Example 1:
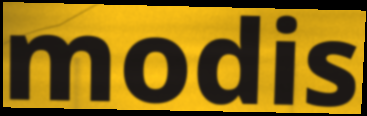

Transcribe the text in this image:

modis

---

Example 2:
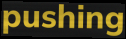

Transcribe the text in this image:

pushing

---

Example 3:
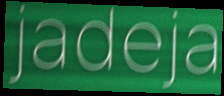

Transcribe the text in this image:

jadeja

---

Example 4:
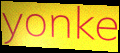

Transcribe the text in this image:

yonke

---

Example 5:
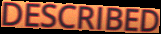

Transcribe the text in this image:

DESCRIBED